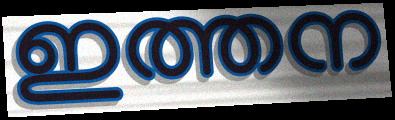
ഇത്തന